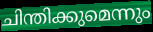
ചിന്തിക്കുമെന്നും